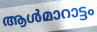
ആൾമാറാട്ടം